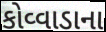
કોવ્વાડાના